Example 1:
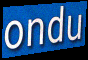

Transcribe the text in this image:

ondu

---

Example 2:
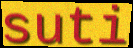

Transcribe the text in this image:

suti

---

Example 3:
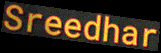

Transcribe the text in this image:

Sreedhar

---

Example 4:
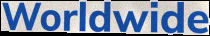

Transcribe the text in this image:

Worldwide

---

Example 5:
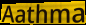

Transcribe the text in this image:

Aathma